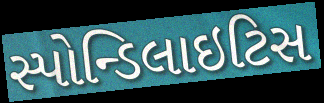
સ્પોન્ડિલાઇટિસ